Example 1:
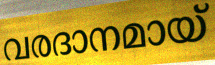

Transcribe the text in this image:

വരദാനമായ്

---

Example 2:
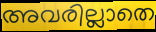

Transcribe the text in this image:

അവരില്ലാതെ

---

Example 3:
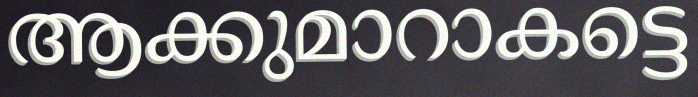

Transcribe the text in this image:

ആക്കുമാറാകട്ടെ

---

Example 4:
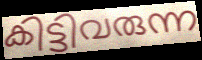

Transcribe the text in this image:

കിട്ടിവരുന്ന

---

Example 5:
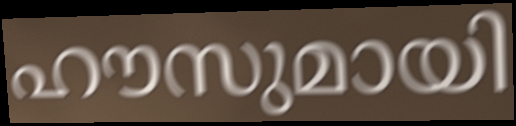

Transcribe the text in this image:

ഹൗസുമായി